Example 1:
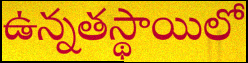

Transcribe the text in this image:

ఉన్నతస్థాయిలో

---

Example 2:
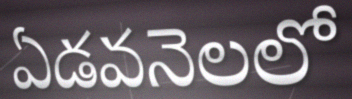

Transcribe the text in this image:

ఏడవనెలలో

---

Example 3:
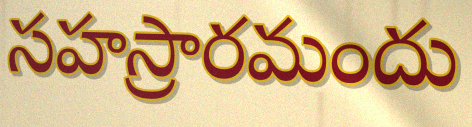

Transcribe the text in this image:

సహస్రారమందు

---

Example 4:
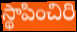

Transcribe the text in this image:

స్థాపించిరి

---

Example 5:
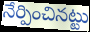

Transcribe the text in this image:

నేర్పించినట్టు